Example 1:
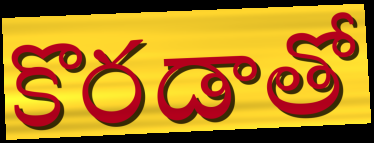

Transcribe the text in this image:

కొరడాతో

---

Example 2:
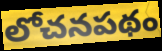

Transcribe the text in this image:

లోచనపథం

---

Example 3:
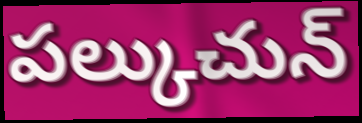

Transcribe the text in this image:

పల్కుచున్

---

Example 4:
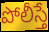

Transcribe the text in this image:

పోలీస్తే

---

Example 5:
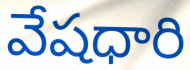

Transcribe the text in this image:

వేషధారి